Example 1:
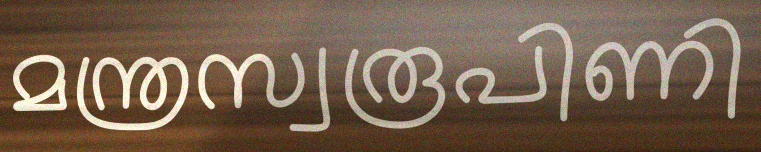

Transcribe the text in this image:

മന്ത്രസ്വരൂപിണി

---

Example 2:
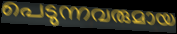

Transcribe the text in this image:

പെടുന്നവരുമായ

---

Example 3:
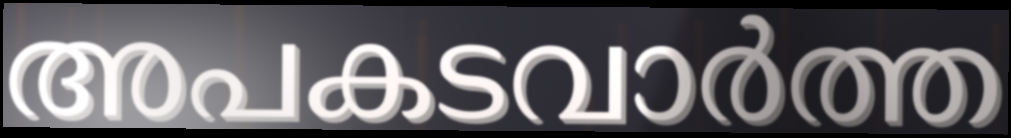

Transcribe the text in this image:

അപകടവാർത്ത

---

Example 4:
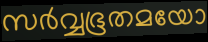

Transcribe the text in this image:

സർവ്വഭൂതമയോ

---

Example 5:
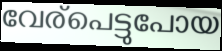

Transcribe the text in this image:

വേര്പെട്ടുപോയ